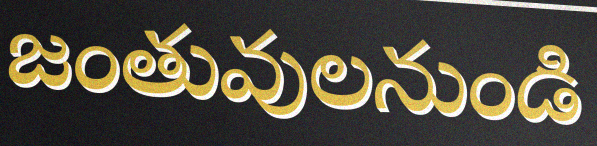
జంతువులనుండి